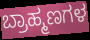
ಬ್ರಾಹ್ಮಣಗಳ